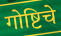
गोष्टिचे